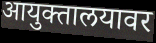
आयुक्तालयावर